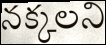
నక్కలని